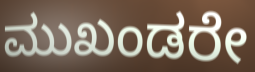
ಮುಖಂಡರೇ